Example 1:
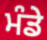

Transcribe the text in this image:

ਮੰਡੇ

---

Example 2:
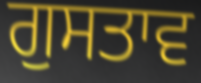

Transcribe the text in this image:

ਗੁਸਤਾਵ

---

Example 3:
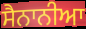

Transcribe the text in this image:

ਸੈਨਾਨੀਆ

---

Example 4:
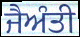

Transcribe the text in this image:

ਜੈਅੰਤੀ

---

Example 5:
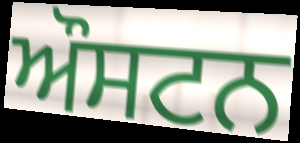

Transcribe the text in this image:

ਔਸਟਨ